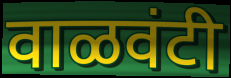
वाळवंटी